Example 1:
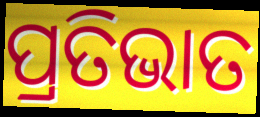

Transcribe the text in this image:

ପ୍ରତିଭାତ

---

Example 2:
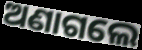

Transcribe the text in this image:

ଅଣାଗଲେ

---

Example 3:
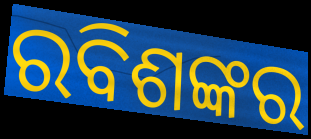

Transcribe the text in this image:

ରବିଶଙ୍କର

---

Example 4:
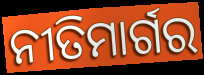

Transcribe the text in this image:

ନୀତିମାର୍ଗର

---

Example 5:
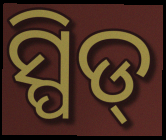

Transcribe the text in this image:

ସ୍ପିଡ୍